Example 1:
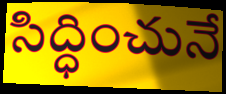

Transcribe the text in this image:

సిద్ధించునే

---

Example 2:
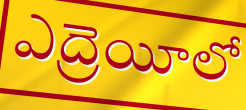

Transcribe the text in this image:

ఎద్రెయీలో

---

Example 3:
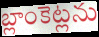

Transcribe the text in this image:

బ్లాంకెట్లను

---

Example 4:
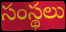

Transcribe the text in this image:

సంస్థలు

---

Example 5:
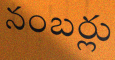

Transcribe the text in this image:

నంబర్లు